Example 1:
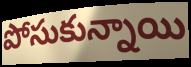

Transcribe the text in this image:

పోసుకున్నాయి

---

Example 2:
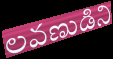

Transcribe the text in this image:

లవణుడిని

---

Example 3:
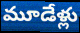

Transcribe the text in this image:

మూడేళ్లు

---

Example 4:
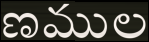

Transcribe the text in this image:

ణముల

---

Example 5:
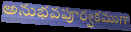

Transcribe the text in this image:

అనుభవపూర్వకముగా